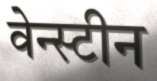
वेन्स्टीन